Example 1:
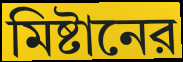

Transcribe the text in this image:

মিষ্টানের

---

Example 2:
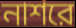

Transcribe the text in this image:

নাশরে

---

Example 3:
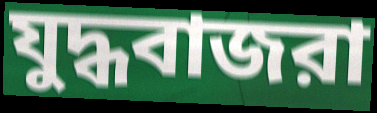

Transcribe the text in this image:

যুদ্ধবাজরা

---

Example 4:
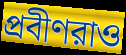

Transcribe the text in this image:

প্রবীণরাও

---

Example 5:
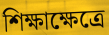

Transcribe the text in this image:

শিক্ষাক্ষেত্রে